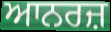
ਆਨਰਜ਼